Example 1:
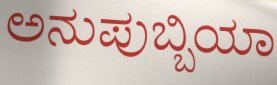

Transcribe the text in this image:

ಅನುಪುಬ್ಬಿಯಾ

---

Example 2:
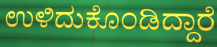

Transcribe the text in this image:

ಉಳಿದುಕೊಂಡಿದ್ದಾರೆ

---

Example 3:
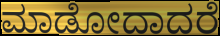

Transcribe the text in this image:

ಮಾಡೋದಾದರೆ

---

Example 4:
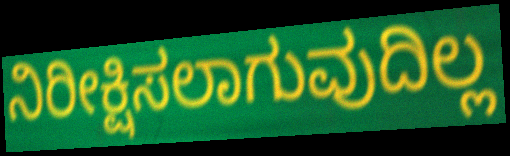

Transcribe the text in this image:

ನಿರೀಕ್ಷಿಸಲಾಗುವುದಿಲ್ಲ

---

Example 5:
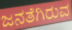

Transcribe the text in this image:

ಜನತೆಗಿರುವ